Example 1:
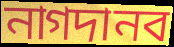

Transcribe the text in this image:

নাগদানব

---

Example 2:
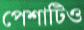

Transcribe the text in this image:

পেশাটিও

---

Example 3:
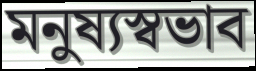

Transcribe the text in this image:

মনুষ্যস্বভাব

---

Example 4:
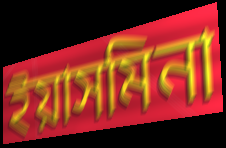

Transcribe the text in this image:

ইয়াসমিনা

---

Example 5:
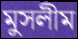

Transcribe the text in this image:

মুসলীম